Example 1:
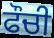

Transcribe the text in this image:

ਫੌਚੀ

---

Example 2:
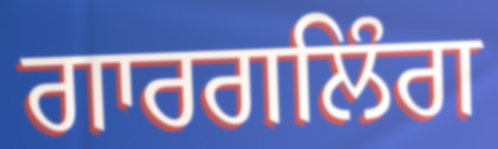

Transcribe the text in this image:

ਗਾਰਗਲਿੰਗ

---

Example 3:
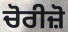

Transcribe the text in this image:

ਚੋਰੀਜ਼ੋ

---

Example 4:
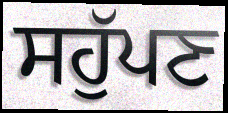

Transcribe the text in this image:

ਸਹੁੱਪਣ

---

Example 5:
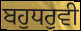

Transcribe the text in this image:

ਬਹੁਧਰੁਵੀ